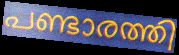
പണ്ടാരത്തി